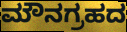
ಮೌನಗ್ರಹದ